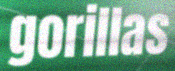
gorillas